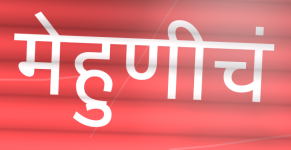
मेहुणीचं